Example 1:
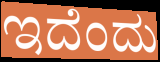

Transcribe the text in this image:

ಇದೆಂದು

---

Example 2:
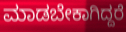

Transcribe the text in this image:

ಮಾಡಬೇಕಾಗಿದ್ದರೆ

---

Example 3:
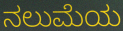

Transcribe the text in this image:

ನಲುಮೆಯ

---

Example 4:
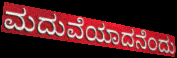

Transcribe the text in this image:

ಮದುವೆಯಾದನೆಂದು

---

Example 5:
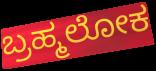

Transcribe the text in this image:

ಬ್ರಹ್ಮಲೋಕ